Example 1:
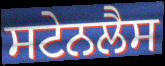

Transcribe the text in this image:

ਸਟੇਨਲੈਸ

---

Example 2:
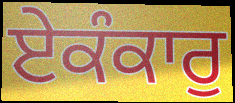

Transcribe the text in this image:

ਏਕੰਕਾਰੁ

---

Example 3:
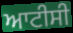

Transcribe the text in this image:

ਆਟੀਸੀ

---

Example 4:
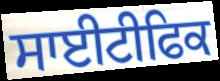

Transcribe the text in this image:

ਸਾਈਟੀਫਿਕ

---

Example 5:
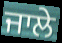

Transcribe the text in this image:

ਜਾਲੇ